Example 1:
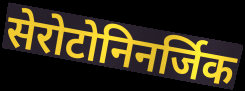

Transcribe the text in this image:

सेरोटोनिनर्जिक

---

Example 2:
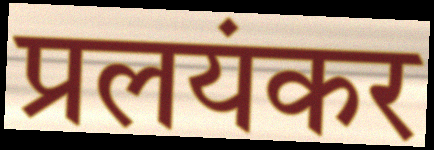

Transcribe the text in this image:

प्रलयंकर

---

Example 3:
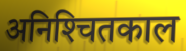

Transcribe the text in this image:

अनिश्‍चितकाल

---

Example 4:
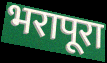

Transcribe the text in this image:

भरापूरा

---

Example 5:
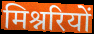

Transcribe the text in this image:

मिश्नरियों